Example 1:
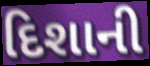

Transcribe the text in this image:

દિશાની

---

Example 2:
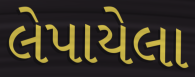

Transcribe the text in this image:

લેપાયેલા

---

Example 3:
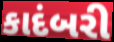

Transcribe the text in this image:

કાદંબરી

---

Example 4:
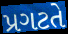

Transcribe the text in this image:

પ્રગટતે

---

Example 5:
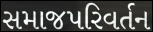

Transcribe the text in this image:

સમાજપરિવર્તન